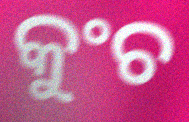
କୁଂଚ